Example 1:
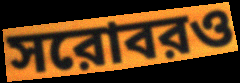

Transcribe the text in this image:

সরোবরও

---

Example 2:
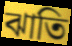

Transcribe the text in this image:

ঝাতি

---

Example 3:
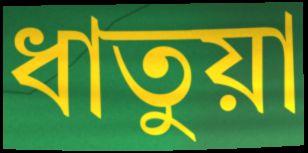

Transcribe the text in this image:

ধাতুয়া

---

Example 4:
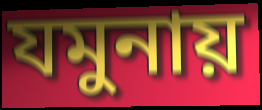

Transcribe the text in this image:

যমুনায়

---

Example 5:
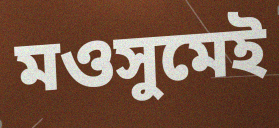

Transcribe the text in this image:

মওসুমেই